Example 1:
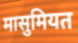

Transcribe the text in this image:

मासुमियत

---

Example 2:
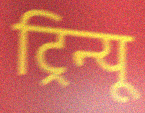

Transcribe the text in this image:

ट्रिन्यू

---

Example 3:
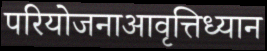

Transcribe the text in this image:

परियोजनाआवृत्तिध्यान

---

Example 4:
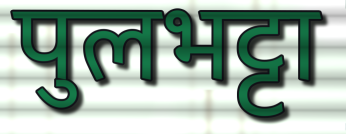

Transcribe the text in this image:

पुलभट्टा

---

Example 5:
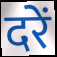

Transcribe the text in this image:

दरें